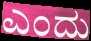
ಎಂದು